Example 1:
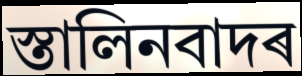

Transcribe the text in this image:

স্তালিনবাদৰ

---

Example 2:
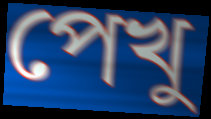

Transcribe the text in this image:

পেখু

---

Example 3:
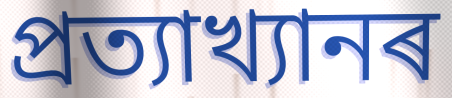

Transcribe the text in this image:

প্ৰত্যাখ্যানৰ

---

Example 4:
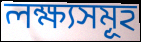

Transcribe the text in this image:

লক্ষ্যসমূহ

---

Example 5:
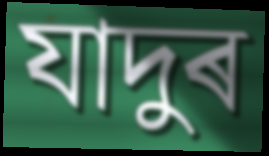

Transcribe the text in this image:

যাদুৰ